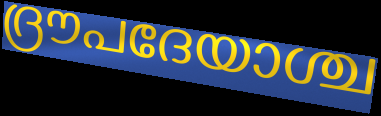
ദ്രൗപദേയാശ്ച